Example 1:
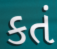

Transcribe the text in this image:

કતં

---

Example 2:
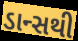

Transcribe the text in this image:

ડાન્સથી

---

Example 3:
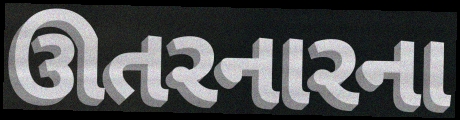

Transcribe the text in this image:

ઊતરનારના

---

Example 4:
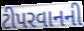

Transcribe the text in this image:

ટીપરવાનની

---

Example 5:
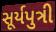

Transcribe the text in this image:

સૂર્યપુત્રી